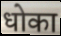
धोका